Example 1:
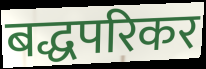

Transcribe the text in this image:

बद्धपरिकर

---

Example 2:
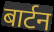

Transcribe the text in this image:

बार्टन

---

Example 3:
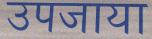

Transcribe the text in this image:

उपजाया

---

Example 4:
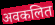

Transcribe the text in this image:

अवकलित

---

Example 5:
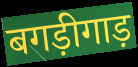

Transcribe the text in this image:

बगड़ीगाड़